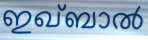
ഇഖ്ബാൽ